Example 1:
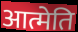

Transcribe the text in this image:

आत्मेति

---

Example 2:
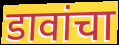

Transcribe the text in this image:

डावांचा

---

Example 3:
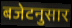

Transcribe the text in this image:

बजेटनुसार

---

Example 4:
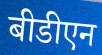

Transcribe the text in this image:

बीडीएन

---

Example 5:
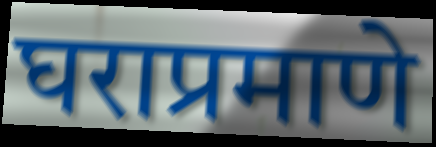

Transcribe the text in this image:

घराप्रमाणे